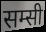
सम्सी